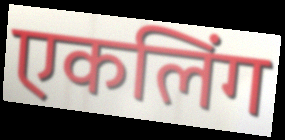
एकलिंग